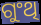
ଗୁଂଥି